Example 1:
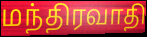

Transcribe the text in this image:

மந்திரவாதி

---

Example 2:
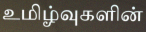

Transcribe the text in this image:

உமிழ்வுகளின்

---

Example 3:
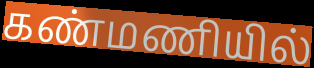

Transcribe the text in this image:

கண்மணியில்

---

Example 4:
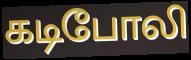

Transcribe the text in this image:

கடிபோலி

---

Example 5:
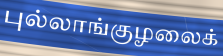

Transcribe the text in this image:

புல்லாங்குழலைக்